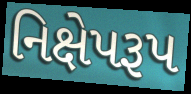
નિક્ષેપરૂપ